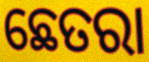
ଛେତରା